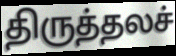
திருத்தலச்